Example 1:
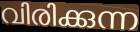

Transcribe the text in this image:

വിരിക്കുന്ന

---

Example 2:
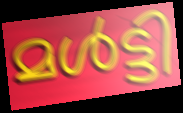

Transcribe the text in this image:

മൾട്ടി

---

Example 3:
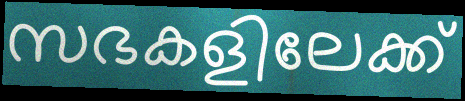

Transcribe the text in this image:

സഭകളിലേക്ക്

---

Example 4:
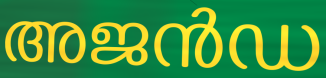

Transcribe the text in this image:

അജൻഡ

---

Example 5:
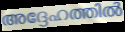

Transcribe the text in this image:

അദ്ദേഹത്തിൽ